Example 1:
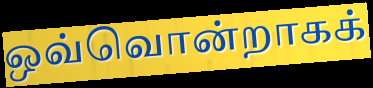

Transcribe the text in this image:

ஒவ்வொன்றாகக்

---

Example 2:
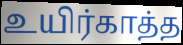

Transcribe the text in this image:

உயிர்காத்த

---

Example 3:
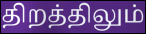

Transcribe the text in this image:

திறத்திலும்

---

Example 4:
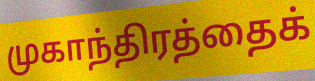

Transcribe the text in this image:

முகாந்திரத்தைக்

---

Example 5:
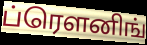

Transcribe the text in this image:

ப்ரௌனிங்